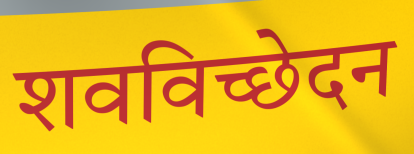
शवविच्छेदन